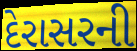
દેરાસરની